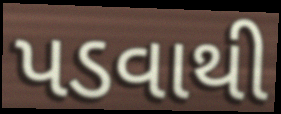
પડવાથી